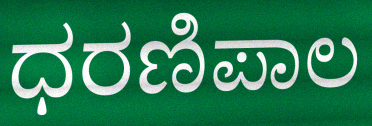
ಧರಣಿಪಾಲ